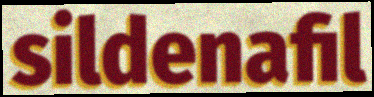
sildenafil